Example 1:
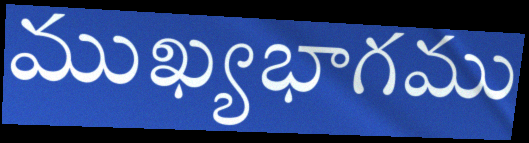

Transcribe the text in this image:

ముఖ్యభాగము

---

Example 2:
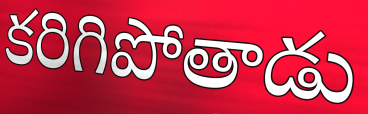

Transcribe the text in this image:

కరిగిపోతాడు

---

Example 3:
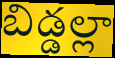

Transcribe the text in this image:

బిడ్డల్లా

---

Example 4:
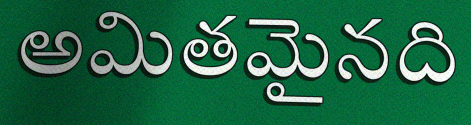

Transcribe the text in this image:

అమితమైనది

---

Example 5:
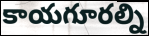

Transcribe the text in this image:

కాయగూరల్ని